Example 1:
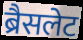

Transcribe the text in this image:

ब्रैसलेट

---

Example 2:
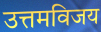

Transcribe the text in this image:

उत्तमविजय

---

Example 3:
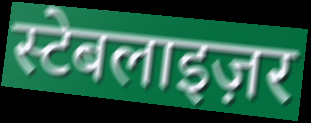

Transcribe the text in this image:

स्टेबलाइज़र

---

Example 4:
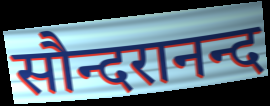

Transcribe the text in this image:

सौन्दरानन्द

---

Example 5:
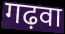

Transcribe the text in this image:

गढ़वा